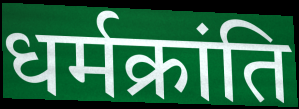
धर्मक्रांति